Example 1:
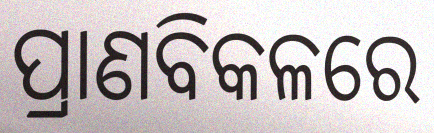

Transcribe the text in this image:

ପ୍ରାଣବିକଳରେ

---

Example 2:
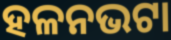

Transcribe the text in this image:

ହଳନଭଟା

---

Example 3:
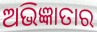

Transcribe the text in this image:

ଅଭିଜ୍ଞାତାର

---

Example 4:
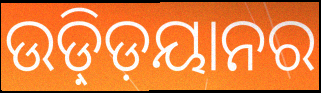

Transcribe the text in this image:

ଉଡ଼୍ଡ଼ିୟାନର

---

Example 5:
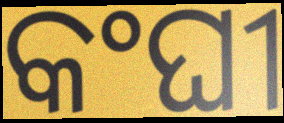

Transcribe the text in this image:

କଂଘୀ